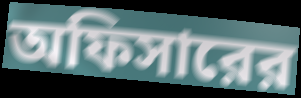
অফিসারের